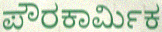
ಪೌರಕಾರ್ಮಿಕ